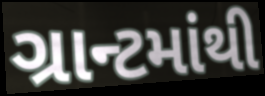
ગ્રાન્ટમાંથી